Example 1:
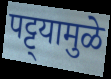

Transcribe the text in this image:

पट्ट्यामुळे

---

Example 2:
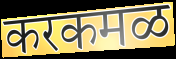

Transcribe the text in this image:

करकमळ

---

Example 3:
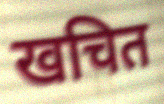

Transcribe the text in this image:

खचित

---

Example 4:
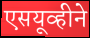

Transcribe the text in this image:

एसयूव्हीने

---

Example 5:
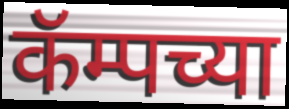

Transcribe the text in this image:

कॅम्पच्या